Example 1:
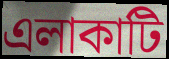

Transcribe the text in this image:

এলাকাটি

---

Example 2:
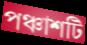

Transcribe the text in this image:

পঞ্চাশটি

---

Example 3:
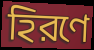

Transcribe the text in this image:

হিরণে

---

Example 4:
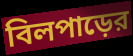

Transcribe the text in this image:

বিলপাড়ের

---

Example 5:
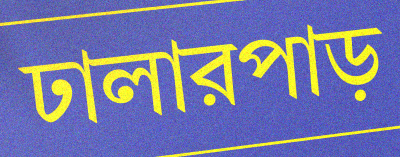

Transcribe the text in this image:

ঢালারপাড়